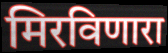
मिरविणारा